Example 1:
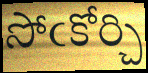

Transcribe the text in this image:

సోఁకోర్చి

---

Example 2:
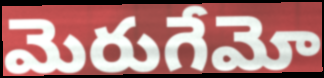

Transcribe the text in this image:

మెరుగేమో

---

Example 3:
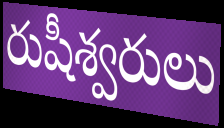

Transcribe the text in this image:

రుషీశ్వరులు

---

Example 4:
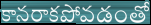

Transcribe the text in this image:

కానరాకపోవడంతో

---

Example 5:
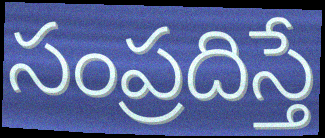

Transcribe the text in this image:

సంప్రదిస్తే